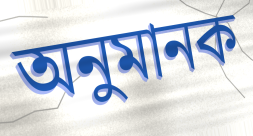
অনুমানক